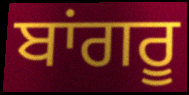
ਬਾਂਗਰੂ